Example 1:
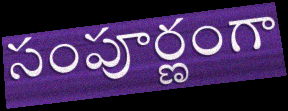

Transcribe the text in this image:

సంపూర్ణంగా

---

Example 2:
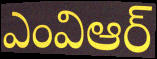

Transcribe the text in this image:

ఎంవిఆర్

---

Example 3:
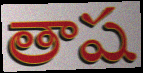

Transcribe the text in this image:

తాష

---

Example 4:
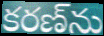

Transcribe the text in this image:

కరణ్‌ను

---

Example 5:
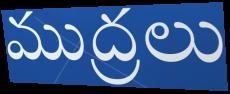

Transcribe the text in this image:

ముద్రలు